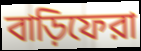
বাড়িফেরা